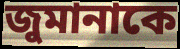
জুমানাকে